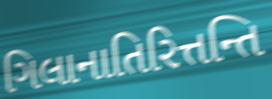
ગિલાનાતિરિત્તન્તિ